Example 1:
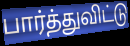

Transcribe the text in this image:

பார்த்துவிட்டு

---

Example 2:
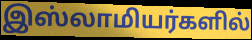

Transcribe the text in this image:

இஸ்லாமியர்களில்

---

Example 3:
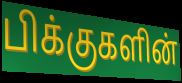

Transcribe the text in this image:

பிக்குகளின்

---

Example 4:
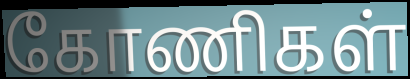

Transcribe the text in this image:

கோணிகள்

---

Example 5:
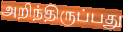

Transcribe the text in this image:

அறிந்திருப்பது